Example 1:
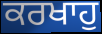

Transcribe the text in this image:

ਕਰਖਾਹੁ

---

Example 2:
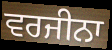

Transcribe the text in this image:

ਵਰਜੀਨਾ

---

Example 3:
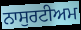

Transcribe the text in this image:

ਨਾਸੁਰਟੀਅਮ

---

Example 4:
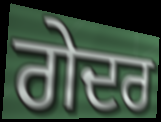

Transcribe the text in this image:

ਗੇਦਰ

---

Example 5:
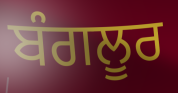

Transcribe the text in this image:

ਬੰਗਲੂਰ